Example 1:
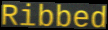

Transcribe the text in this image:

Ribbed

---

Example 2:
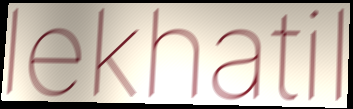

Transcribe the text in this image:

lekhatil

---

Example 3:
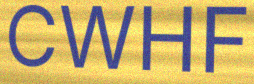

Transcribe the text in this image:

CWHF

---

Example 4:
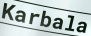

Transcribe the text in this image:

Karbala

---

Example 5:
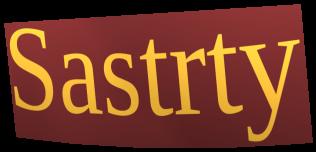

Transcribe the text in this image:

Sastrty